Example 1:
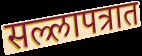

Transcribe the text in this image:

सल्लापत्रात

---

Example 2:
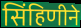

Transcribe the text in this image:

सिंहिणीने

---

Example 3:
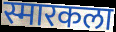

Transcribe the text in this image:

स्मारकला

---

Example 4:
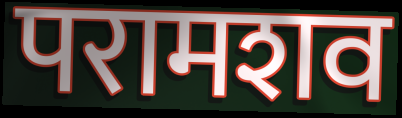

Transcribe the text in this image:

परामशव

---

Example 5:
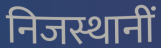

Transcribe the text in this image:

निजस्थानीं